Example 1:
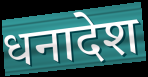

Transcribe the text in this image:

धनादेश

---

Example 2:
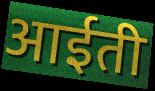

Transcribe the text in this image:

आईती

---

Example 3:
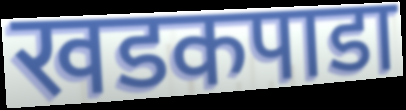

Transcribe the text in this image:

खडकपाडा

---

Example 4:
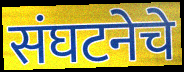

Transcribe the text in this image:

संघटनेचे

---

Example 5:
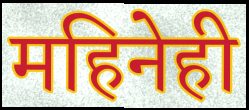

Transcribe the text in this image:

महिनेही